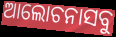
ଆଲୋଚନାସବୁ